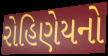
રોહિણેયનો